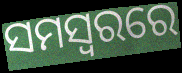
ସମସ୍ବରରେ